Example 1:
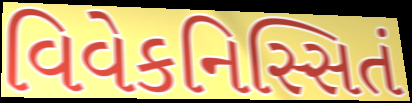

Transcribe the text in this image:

વિવેકનિસ્સિતં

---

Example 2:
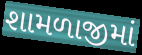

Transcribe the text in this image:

શામળાજીમાં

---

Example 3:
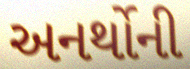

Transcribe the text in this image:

અનર્થોની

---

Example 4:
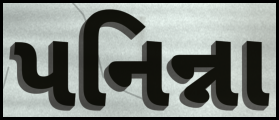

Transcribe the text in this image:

પનિન્ના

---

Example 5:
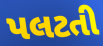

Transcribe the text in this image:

પલટતી